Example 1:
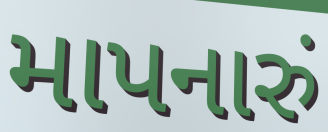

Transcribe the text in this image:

માપનારું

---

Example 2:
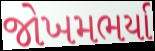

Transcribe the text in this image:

જોખમભર્યા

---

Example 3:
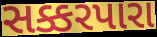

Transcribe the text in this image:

સક્કરપારા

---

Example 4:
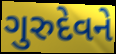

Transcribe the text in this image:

ગુરુદેવને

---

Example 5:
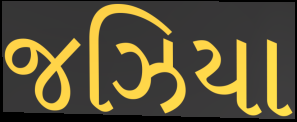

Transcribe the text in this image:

જઝિયા